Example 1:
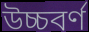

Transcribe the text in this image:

উচ্চবর্ণ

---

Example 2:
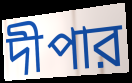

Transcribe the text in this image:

দীপার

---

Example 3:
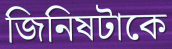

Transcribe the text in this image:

জিনিষটাকে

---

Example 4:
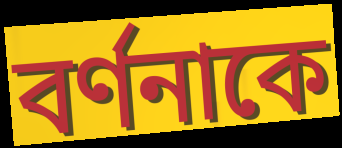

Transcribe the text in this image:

বর্ণনাকে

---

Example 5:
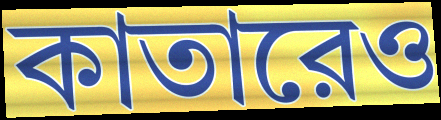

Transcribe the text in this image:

কাতারেও